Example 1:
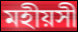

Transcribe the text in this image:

মহীয়সী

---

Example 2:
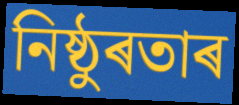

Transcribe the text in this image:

নিষ্ঠুৰতাৰ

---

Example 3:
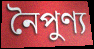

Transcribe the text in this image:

নৈপুণ্য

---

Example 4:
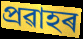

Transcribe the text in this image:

প্ৰৱাহৰ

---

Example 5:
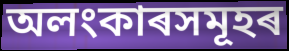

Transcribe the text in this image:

অলংকাৰসমূহৰ